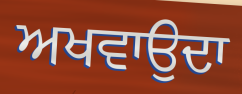
ਅਖਵਾਉਦਾ